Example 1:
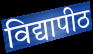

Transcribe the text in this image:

विद्यापीठ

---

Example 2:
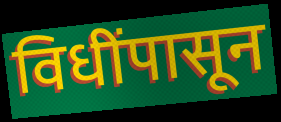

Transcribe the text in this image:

विधींपासून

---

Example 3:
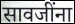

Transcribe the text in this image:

सावजींना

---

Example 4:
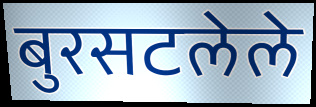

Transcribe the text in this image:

बुरसटलेले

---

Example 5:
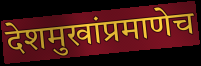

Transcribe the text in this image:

देशमुखांप्रमाणेच